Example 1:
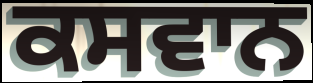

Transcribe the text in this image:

ਕਸਵਾਨ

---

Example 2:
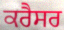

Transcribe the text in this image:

ਕਰੈਸਰ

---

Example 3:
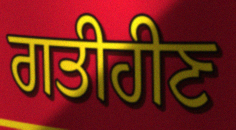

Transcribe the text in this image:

ਗਤੀਹੀਣ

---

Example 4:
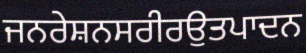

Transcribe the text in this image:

ਜਨਰੇਸ਼ਨਸਰੀਰਉਤਪਾਦਨ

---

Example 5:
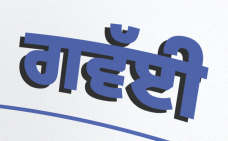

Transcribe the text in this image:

ਗਵੱਈ